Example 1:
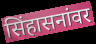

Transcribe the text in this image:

सिंहासनांवर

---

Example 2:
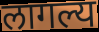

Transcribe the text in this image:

लागल्य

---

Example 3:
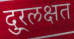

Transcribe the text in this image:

दुर्लक्षत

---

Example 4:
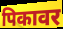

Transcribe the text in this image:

पिकावर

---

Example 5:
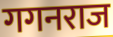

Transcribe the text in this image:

गगनराज